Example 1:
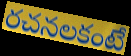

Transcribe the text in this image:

రచనలకంటే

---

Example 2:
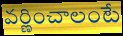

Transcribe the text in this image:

వర్ణించాలంటే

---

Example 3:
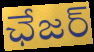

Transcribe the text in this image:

ఛేజర్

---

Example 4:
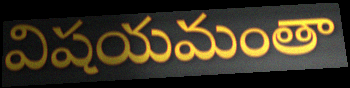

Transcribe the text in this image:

విషయమంతా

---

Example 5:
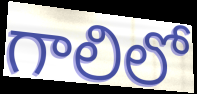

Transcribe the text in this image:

గాలిలో